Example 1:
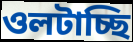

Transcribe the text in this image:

ওলটাচ্ছি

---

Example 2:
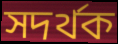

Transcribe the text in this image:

সদর্থক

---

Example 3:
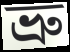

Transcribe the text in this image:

ভ্রু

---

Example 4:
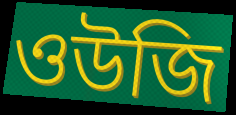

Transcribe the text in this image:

ওউজি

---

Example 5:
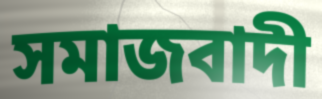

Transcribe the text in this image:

সমাজবাদী